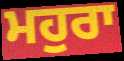
ਮਹੁਰਾ